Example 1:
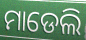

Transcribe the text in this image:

ମାଡେଲି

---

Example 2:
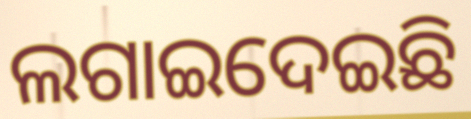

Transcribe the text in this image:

ଲଗାଇଦେଇଛି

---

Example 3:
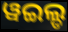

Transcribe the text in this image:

ୱଇଲ୍ଡ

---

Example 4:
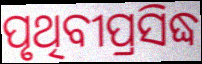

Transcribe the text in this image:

ପୃଥିବୀପ୍ରସିଦ୍ଧ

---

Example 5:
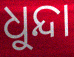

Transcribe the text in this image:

ଧୁନ୍ଦା